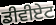
ਡੀਵੀਏਟ